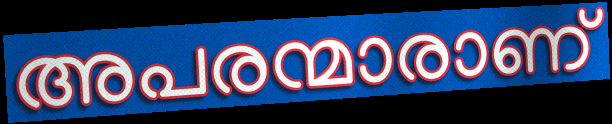
അപരന്മാരാണ്